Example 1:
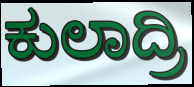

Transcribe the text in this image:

ಕುಲಾದ್ರಿ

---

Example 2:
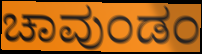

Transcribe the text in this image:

ಚಾವುಂಡಂ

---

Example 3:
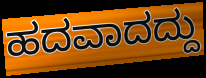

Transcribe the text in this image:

ಹದವಾದದ್ದು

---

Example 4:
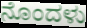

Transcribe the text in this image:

ನೊಂದಳು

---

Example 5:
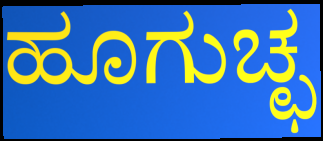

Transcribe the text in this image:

ಹೂಗುಚ್ಛ